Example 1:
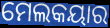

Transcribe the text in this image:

ମେଲକୟାର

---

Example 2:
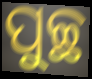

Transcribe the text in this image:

ପୁଚ୍ଛ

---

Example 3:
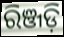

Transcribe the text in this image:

ରିଞ୍ଜଡ଼ି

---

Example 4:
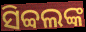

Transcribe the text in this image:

ସିବ୍ବଲଙ୍କ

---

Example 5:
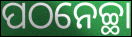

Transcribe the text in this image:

ପଠନେଚ୍ଛା